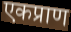
एकप्राण